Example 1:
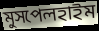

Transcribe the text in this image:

মুসপেলহাইম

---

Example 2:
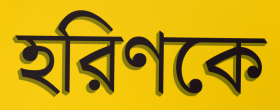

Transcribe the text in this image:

হরিণকে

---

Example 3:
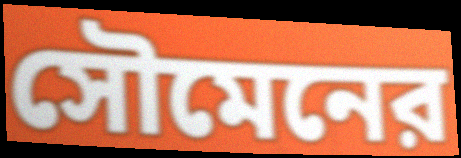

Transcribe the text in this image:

সৌমেনের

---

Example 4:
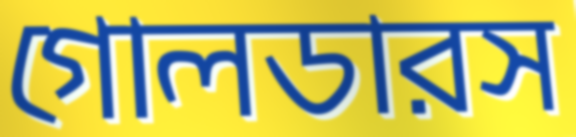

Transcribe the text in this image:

গোলডারস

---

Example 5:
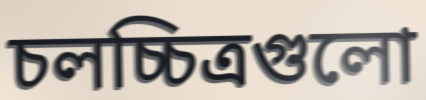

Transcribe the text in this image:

চলচ্চিত্রগুলো